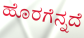
ಹೊರಗೆನ್ನದೆ